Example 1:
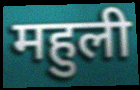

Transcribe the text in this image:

महुली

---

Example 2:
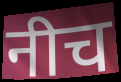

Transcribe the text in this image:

नीच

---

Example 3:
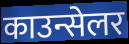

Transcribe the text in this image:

काउन्सेलर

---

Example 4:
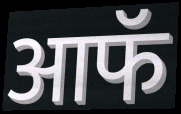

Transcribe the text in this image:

आफॅ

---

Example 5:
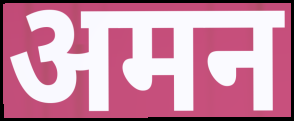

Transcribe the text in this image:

अमन